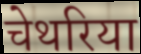
चेथरिया